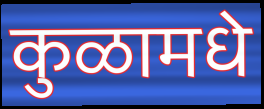
कुळामधे